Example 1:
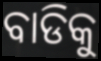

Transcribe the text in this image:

ବାଡିକୁ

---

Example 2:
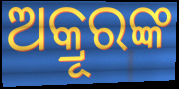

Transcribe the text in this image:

ଅକ୍ରୂରଙ୍କ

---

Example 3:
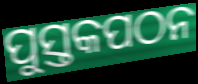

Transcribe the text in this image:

ପୁସ୍ତକପଠନ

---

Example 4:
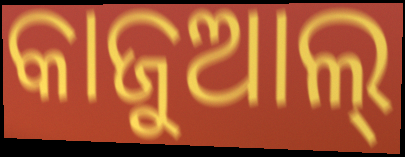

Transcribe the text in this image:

କାଜୁଆଲ୍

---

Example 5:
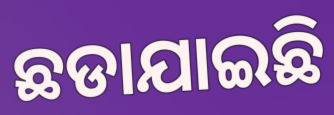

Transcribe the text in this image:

ଛଡାଯାଇଛି